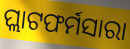
ପ୍ଲାଟଫର୍ମସାରା